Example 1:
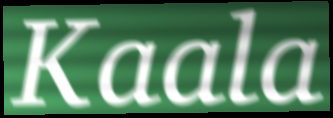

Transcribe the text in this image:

Kaala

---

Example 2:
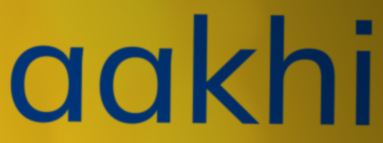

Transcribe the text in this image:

aakhi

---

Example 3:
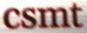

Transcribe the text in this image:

csmt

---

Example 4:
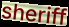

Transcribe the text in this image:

sheriff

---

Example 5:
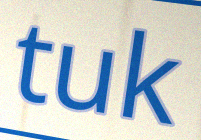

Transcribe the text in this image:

tuk